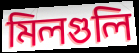
মিলগুলি